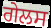
ਗੇਲਸ